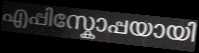
എപ്പിസ്കോപ്പയായി